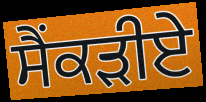
ਸੈਂਕੜੀਏ